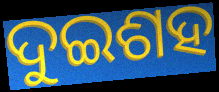
ଦୁଇଶହ